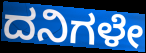
ದನಿಗಳೇ